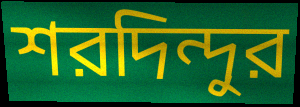
শরদিন্দুর